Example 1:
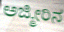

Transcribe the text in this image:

ಅಜ್ಮೀರಿನ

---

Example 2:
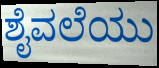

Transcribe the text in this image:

ಶೈವಲೆಯು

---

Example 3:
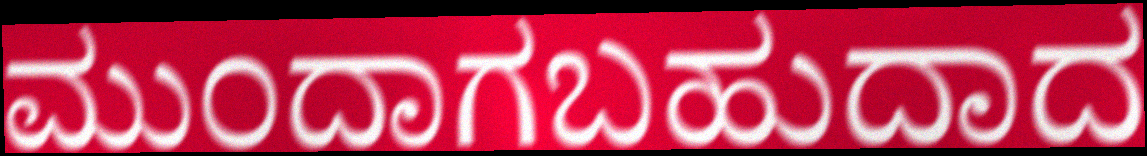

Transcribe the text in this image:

ಮುಂದಾಗಬಹುದಾದ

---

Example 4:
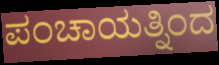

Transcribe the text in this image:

ಪಂಚಾಯತ್ನಿಂದ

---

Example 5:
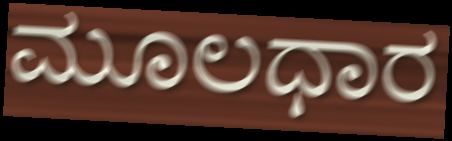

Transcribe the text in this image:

ಮೂಲಧಾರ